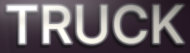
TRUCK